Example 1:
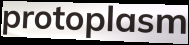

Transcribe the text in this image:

protoplasm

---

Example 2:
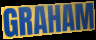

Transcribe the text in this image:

GRAHAM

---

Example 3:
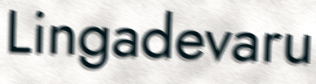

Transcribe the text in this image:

Lingadevaru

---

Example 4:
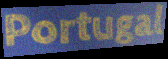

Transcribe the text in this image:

Portugal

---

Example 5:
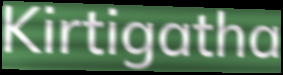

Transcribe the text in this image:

Kirtigatha